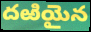
దఱియైన